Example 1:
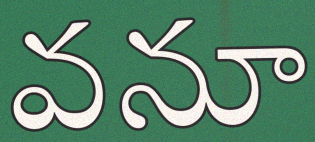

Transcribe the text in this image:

వనూ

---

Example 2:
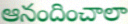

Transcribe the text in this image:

ఆనందించాలా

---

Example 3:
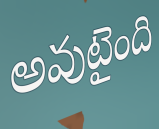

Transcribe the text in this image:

అవుటైంది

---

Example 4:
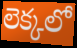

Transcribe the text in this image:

లెక్కలో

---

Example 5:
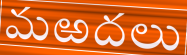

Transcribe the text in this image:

మఱదలు